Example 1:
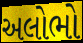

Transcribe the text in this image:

અલોભો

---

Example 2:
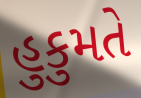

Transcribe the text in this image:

હુકુમતે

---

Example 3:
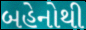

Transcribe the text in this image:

બહેનોથી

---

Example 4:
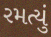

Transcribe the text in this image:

રમત્યું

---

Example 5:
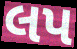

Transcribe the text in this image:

લપ